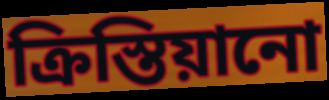
ক্রিস্তিয়ানো